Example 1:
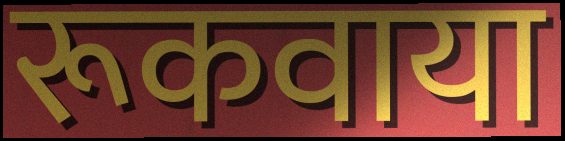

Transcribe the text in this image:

रूकवाया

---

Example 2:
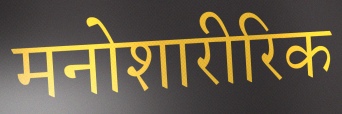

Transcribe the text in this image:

मनोशारीरिक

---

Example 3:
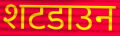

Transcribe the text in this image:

शटडाउन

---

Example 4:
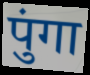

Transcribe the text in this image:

पुंगा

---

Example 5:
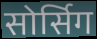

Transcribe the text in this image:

सोर्सिग